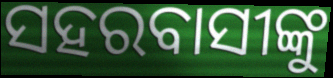
ସହରବାସୀଙ୍କୁ